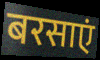
बरसाएं